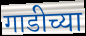
गाडीच्या